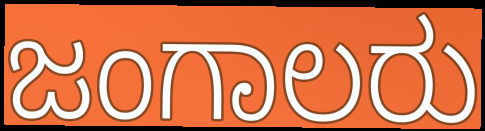
ಜಂಗಾಲರು